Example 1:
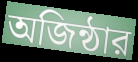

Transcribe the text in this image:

অজিন্ঠার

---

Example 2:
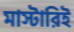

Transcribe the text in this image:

মাস্টারিই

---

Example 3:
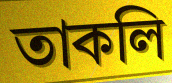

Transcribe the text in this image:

তাকলি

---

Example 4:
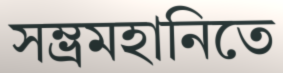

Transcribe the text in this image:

সম্ভ্রমহানিতে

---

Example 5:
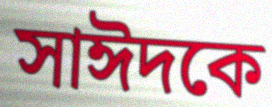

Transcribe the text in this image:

সাঈদকে